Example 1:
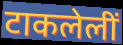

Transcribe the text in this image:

टाकलेलीं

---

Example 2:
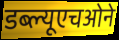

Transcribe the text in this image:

डब्ल्यूएचओने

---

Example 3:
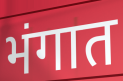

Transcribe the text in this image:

भंगात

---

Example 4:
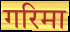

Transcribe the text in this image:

गरिमा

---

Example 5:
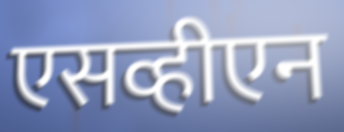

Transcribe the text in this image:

एसव्हीएन